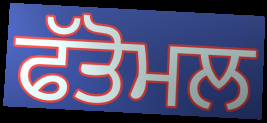
ਫੱਤੋਮਲ